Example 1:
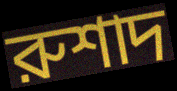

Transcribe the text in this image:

রুশাদ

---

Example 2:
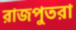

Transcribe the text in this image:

রাজপুতরা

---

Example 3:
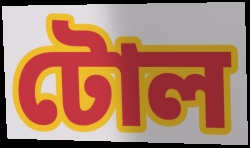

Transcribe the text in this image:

টোল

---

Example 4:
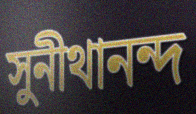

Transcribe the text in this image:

সুনীথানন্দ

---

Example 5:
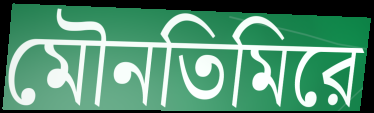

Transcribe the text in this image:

মৌনতিমিরে